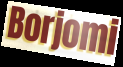
Borjomi